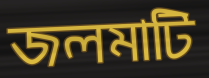
জলমাটি